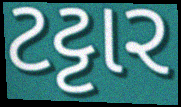
ટટ્ટાર